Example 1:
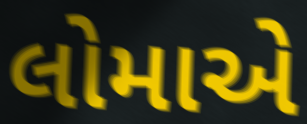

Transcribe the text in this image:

લોમાએ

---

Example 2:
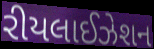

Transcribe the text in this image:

રીયલાઈઝેશન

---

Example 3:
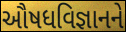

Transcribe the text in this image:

ઔષધવિજ્ઞાનને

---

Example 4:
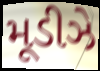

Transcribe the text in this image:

મૂડીઝે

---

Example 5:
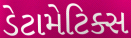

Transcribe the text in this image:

ડેટામેટિક્સ